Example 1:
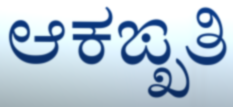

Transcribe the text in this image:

ಆಕಙ್ಖತಿ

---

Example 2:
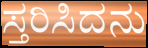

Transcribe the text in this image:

ಸ್ತರಿಸಿದನು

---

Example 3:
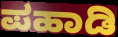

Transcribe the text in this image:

ಪಹಾಡಿ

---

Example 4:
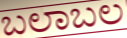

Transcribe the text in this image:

ಬಲಾಬಲ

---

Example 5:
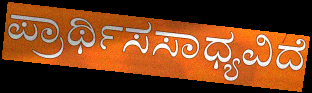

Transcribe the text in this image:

ಪ್ರಾರ್ಥಿಸಸಾಧ್ಯವಿದೆ